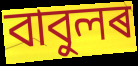
বাবুলৰ